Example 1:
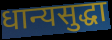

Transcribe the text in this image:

धान्यसुद्धा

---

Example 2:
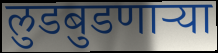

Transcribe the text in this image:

लुडबुडणाऱ्या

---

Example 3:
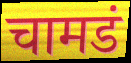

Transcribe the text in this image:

चामडं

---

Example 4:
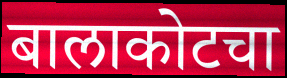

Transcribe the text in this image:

बालाकोटचा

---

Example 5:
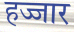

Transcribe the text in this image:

हज्जार